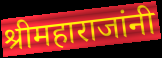
श्रीमहाराजांनी